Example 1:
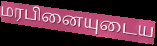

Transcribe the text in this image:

மரபினையுடைய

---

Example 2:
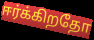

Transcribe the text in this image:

ஈர்க்கிறதோ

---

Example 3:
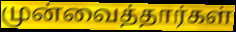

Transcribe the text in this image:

முன்வைத்தார்கள்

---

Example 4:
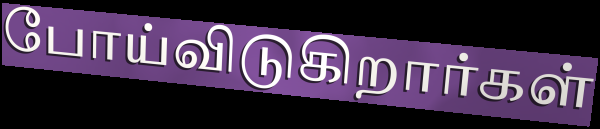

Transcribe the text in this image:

போய்விடுகிறார்கள்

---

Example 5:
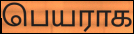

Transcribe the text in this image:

பெயராக